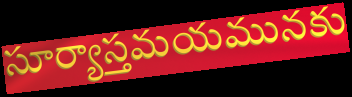
సూర్యాస్తమయమునకు